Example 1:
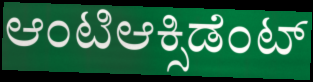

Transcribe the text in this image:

ಆಂಟಿಆಕ್ಸಿಡೆಂಟ್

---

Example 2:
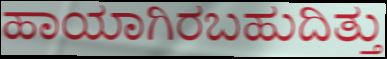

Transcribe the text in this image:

ಹಾಯಾಗಿರಬಹುದಿತ್ತು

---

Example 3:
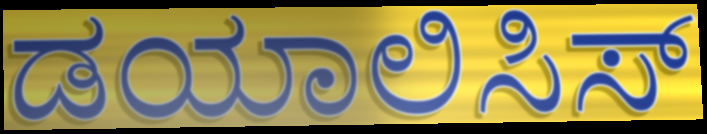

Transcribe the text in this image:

ಡಯಾಲಿಸಿಸ್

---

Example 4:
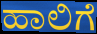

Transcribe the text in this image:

ಹಾಲಿಗೆ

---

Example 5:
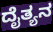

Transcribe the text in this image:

ದೈತ್ಯನ